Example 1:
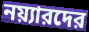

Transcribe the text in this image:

নয়্যারদের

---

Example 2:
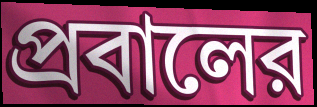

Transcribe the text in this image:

প্রবালের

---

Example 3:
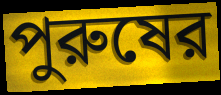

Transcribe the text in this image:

পুরুষের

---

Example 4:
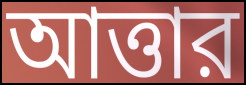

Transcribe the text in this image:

আত্তার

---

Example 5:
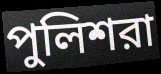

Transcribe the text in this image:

পুলিশরা